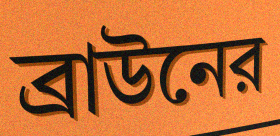
ব্রাউনের